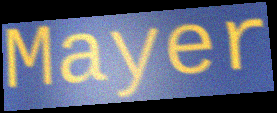
Mayer